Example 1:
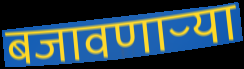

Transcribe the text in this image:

बजावणाऱ्या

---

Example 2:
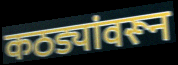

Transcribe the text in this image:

कठड्यांवरून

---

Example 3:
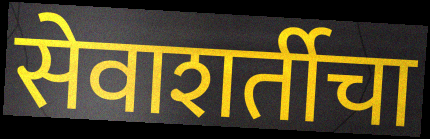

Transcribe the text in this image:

सेवाशर्तीचा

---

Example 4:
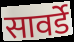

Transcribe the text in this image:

सावर्डे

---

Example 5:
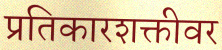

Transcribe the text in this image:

प्रतिकारशक्तीवर